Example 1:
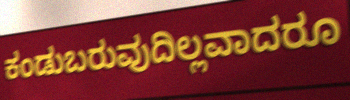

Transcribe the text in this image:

ಕಂಡುಬರುವುದಿಲ್ಲವಾದರೂ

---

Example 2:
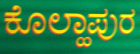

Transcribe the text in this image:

ಕೊಲ್ಹಾಪುರ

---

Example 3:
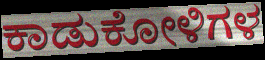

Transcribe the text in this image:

ಕಾಡುಕೋಳಿಗಳ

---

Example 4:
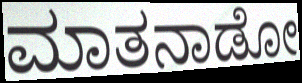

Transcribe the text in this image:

ಮಾತನಾಡೋ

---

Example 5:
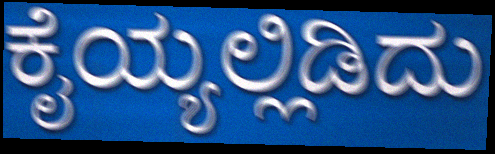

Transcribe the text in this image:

ಕೈಯ್ಯಲ್ಲಿಡಿದು